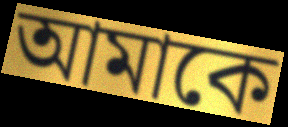
আমাকে